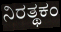
ನಿರತ್ಥಕಂ